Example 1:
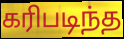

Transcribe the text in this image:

கரிபடிந்த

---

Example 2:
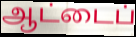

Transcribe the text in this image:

ஆட்டைப்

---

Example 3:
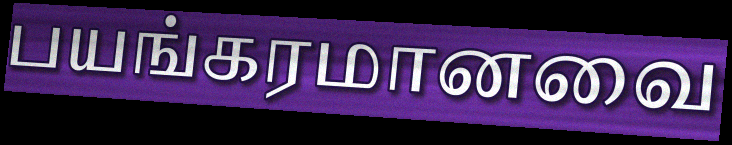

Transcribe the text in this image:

பயங்கரமானவை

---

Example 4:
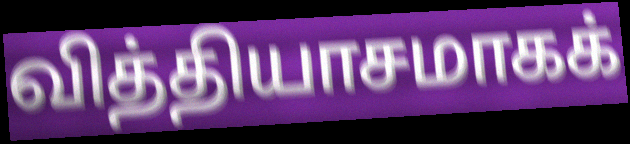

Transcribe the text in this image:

வித்தியாசமாகக்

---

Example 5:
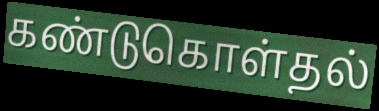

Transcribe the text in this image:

கண்டுகொள்தல்